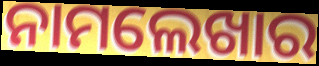
ନାମଲେଖାର